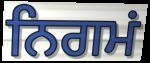
ਨਿਗਮਂ